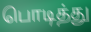
பொடித்து